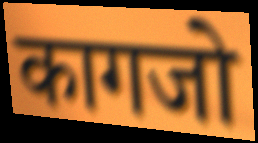
कागजो